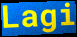
Lagi